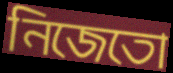
নিজেতো